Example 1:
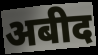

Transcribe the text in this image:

अबीद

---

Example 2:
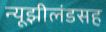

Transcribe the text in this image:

न्यूझीलंडसह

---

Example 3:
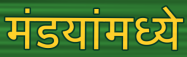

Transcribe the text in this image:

मंडयांमध्ये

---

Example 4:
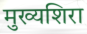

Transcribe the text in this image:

मुख्यशिरा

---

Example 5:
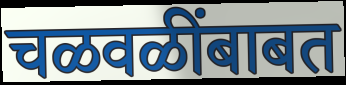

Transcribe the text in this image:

चळवळींबाबत